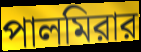
পালমিরার